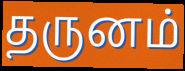
தருனம்